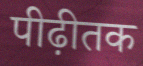
पीढ़ीतक